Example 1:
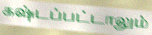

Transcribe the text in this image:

கஷ்டப்பட்டாலும்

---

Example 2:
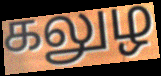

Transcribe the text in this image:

கலுழ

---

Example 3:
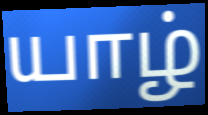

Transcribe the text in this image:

யாழ்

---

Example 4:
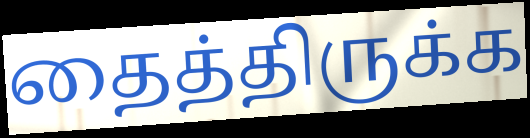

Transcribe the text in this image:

தைத்திருக்க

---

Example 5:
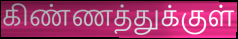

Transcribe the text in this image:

கிண்ணத்துக்குள்